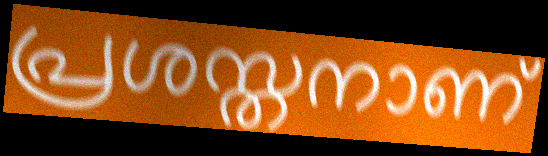
പ്രശസ്തനാണ്